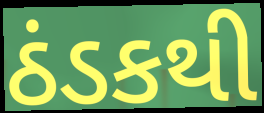
ઠંડકથી